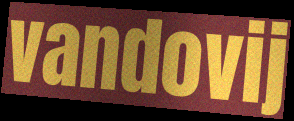
vandovij